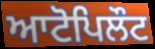
ਆਟੋਪਿਲੌਟ